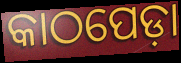
କାଠପେଡ଼ା